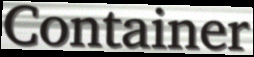
Container